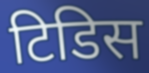
टिडिस